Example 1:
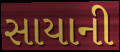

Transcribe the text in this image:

સાયાની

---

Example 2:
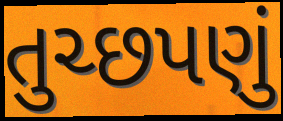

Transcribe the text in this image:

તુચ્છપણું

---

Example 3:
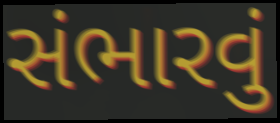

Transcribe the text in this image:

સંભારવું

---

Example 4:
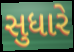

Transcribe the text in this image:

સુધારે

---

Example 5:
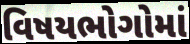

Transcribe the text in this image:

વિષયભોગોમાં